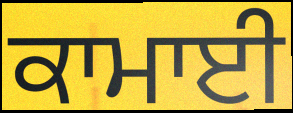
ਕਾਮਾਈ